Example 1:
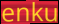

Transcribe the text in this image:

enku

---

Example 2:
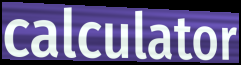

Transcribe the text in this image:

calculator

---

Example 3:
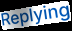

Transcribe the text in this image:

Replying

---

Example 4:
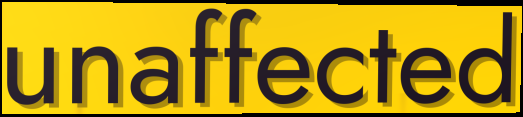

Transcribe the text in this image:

unaffected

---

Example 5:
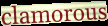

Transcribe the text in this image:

clamorous